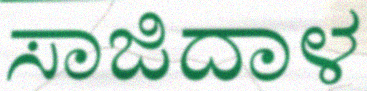
ಸಾಜಿದಾಳ